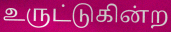
உருட்டுகின்ற